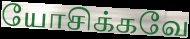
யோசிக்கவே